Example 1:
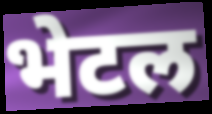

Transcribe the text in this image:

भेटल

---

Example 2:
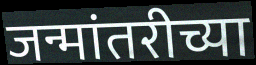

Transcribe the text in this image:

जन्मांतरीच्या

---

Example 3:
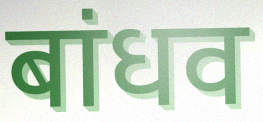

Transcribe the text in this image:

बांधव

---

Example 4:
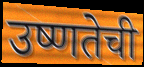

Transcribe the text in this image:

उष्णतेची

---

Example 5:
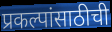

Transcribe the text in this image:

प्रकल्पांसाठीची